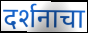
दर्शनाचा